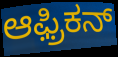
ಆಫ಼್ರಿಕನ್